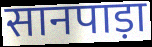
सानपाड़ा